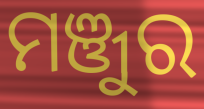
ମଞ୍ଜୁର